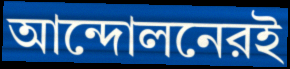
আন্দোলনেরই